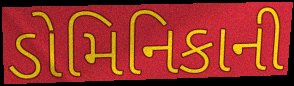
ડોમિનિકાની